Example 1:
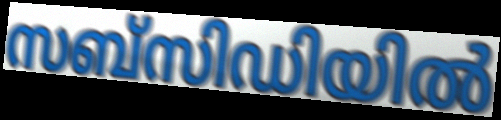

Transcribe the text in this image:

സബ്സിഡിയിൽ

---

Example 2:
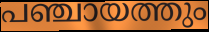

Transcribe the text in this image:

പഞ്ചായത്തും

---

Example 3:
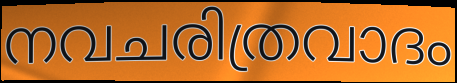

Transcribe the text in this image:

നവചരിത്രവാദം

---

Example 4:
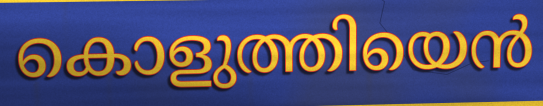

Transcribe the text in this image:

കൊളുത്തിയെൻ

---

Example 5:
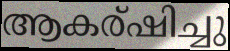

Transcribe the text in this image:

ആകര്ഷിച്ചു